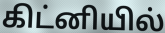
கிட்னியில்